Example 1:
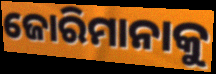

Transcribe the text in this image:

ଜୋରିମାନାକୁ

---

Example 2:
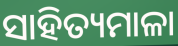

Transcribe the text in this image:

ସାହିତ୍ୟମାଳା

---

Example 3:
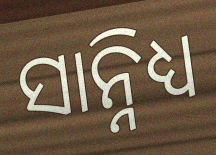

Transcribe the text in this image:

ସାନ୍ନିଧ୍ୟ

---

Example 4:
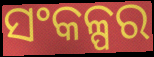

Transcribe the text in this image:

ସଂକଳ୍ପର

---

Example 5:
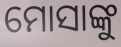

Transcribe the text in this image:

ମୋସାଙ୍କୁ